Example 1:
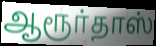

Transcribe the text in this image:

ஆரூர்தாஸ்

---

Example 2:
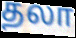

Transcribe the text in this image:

தலா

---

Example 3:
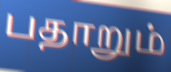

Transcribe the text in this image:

பதாறும்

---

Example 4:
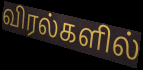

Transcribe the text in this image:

விரல்களில்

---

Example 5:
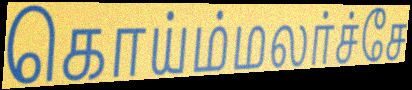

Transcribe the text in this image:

கொய்ம்மலர்ச்சே